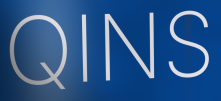
QINS